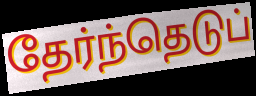
தேர்ந்தெடுப்